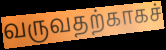
வருவதற்காகச்